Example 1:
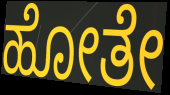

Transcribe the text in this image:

ಹೋತೇ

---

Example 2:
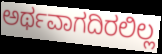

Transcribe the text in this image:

ಅರ್ಥವಾಗದಿರಲಿಲ್ಲ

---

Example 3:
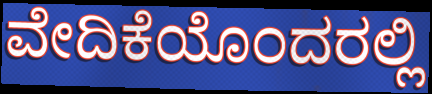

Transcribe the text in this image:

ವೇದಿಕೆಯೊಂದರಲ್ಲಿ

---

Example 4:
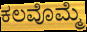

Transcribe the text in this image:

ಕಲವೊಮ್ಮೆ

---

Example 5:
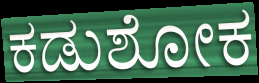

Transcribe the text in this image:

ಕಡುಶೋಕ